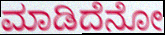
ಮಾಡಿದೆನೋ